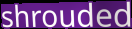
shrouded